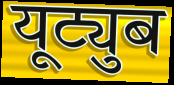
यूट्युब